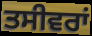
ਤਸੀਵਰਾਂ